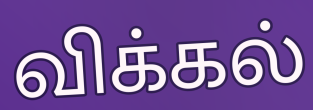
விக்கல்